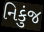
નિકુંજ